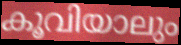
കൂവിയാലും